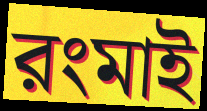
রংমাই